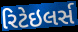
રિટેઇલર્સ